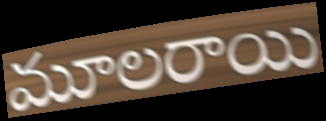
మూలరాయి